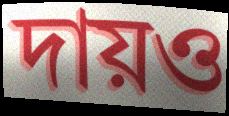
দায়ও